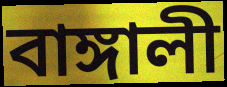
বাঙ্গালী